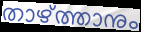
താഴ്ത്താനും